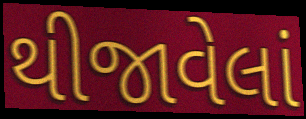
થીજાવેલાં